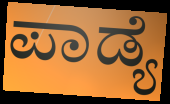
ಪಾಡ್ಯೆ